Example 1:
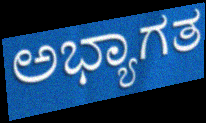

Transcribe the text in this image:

ಅಭ್ಯಾಗತ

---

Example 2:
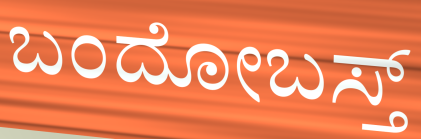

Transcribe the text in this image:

ಬಂದೋಬಸ್ತ್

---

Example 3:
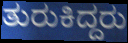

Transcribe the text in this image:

ತುರುಕಿದ್ದರು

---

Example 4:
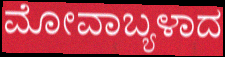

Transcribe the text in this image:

ಮೋವಾಬ್ಯಳಾದ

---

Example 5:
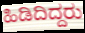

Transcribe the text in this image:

ಹಿಡಿದಿದ್ದರು